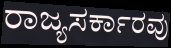
ರಾಜ್ಯಸರ್ಕಾರವು